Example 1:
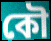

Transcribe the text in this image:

কৌ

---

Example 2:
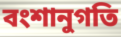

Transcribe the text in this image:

বংশানুগতি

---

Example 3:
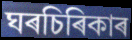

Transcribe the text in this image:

ঘৰচিৰিকাৰ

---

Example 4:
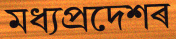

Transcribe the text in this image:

মধ্যপ্ৰদেশৰ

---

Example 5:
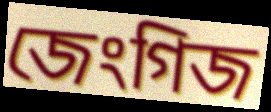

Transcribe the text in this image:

জেংগিজ